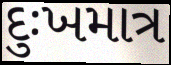
દુઃખમાત્ર